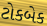
ટોકબેક